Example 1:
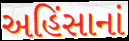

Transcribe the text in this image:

અહિંસાનાં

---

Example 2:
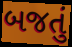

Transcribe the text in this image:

બજતું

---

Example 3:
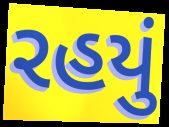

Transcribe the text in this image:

રહયું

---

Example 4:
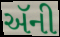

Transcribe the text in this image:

ઍની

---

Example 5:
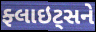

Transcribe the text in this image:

ફ્લાઇટ્સને